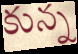
కున్న